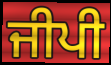
ਜੀਪੀ